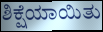
ಶಿಕ್ಷೆಯಾಯಿತು